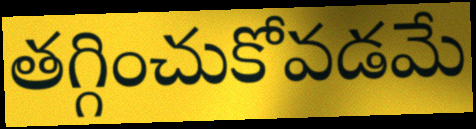
తగ్గించుకోవడమే